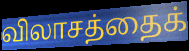
விலாசத்தைக்